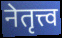
नेतृत्त्व